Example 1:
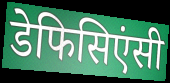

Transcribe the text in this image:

डेफिसिएंसी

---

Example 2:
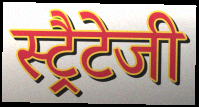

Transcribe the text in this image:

स्ट्रैटेजी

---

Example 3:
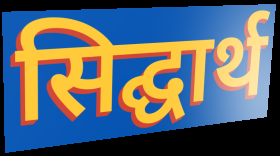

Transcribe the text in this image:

सिद्घार्थ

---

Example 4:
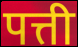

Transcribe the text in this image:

पत्ती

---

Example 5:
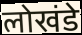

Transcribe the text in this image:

लोखंडे